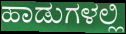
ಹಾಡುಗಳಲ್ಲಿ